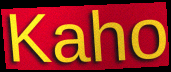
Kaho